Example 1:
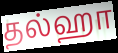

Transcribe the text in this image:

தல்ஹா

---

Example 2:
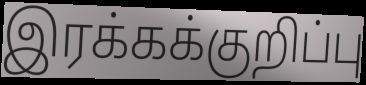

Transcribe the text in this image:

இரக்கக்குறிப்பு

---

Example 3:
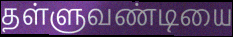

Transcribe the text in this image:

தள்ளுவண்டியை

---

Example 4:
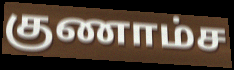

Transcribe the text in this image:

குணாம்ச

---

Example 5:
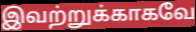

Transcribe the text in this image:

இவற்றுக்காகவே